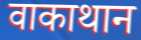
वाकाथान